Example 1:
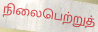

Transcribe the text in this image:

நிலைபெற்றுத்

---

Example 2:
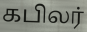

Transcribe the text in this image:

கபிலர்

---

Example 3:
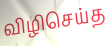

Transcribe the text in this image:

விழிசெய்த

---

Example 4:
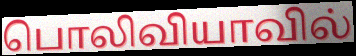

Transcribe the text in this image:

பொலிவியாவில்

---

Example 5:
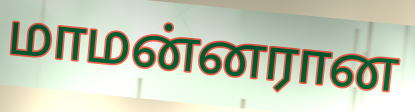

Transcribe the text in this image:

மாமன்னரான